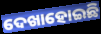
ଦେଖାହୋଇଛି